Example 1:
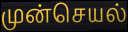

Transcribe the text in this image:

முன்செயல்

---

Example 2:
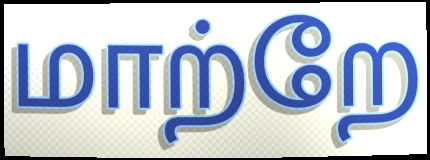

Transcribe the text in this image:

மாற்றே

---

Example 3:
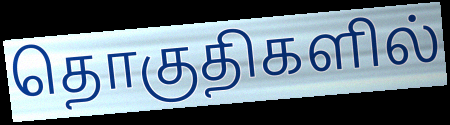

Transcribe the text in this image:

தொகுதிகளில்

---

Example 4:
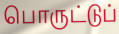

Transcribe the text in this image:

பொருட்டுப்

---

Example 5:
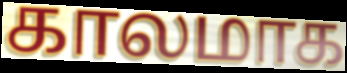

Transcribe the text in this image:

காலமாக